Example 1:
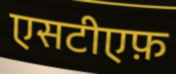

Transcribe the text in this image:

एसटीएफ़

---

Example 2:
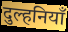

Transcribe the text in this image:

दुल्हनियाँ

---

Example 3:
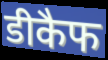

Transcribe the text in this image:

डीकैफ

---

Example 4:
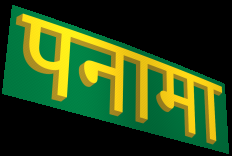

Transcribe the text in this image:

पनामा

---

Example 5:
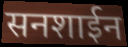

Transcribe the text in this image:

सनशाईन